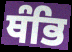
ਥੰਭਿ